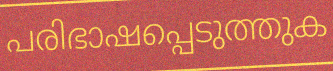
പരിഭാഷപ്പെടുത്തുക